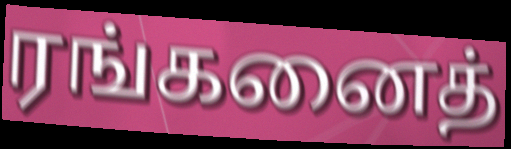
ரங்கனைத்